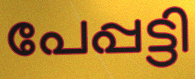
പേപ്പട്ടി